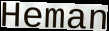
Heman